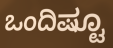
ಒಂದಿಷ್ಟೂ